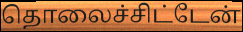
தொலைச்சிட்டேன்